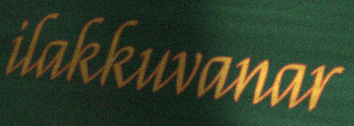
ilakkuvanar